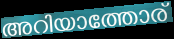
അറിയാത്തോര്